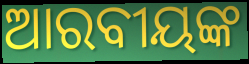
ଆରବୀୟଙ୍କ